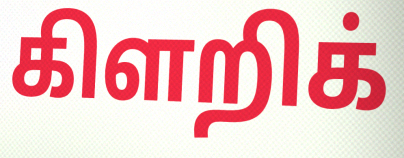
கிளறிக்